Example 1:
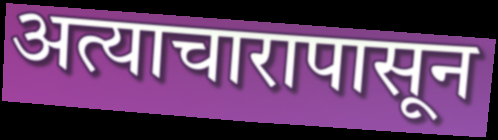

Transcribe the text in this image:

अत्याचारापासून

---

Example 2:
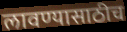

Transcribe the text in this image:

लावण्यासाठीच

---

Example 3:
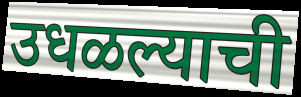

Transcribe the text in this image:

उधळल्याची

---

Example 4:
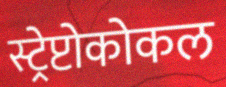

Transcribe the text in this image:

स्ट्रेप्टोकोकल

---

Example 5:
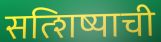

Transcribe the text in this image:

सत्शिष्याची